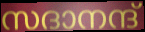
സദാനന്ദ്